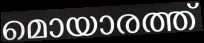
മൊയാരത്ത്